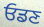
ਓਡਣ